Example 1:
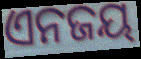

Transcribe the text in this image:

ଏନଜୟ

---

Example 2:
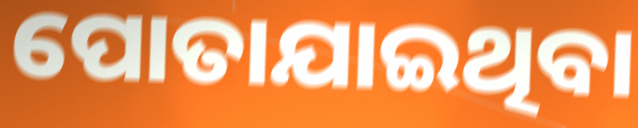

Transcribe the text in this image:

ପୋତାଯାଇଥିବା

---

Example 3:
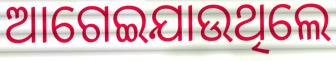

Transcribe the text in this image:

ଆଗେଇଯାଉଥିଲେ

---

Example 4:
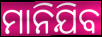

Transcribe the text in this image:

ମାନିଯିବ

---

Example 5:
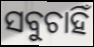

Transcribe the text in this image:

ସବୁଚାହିଁ